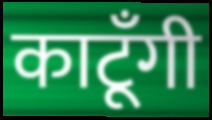
काटूँगी